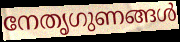
നേതൃഗുണങ്ങൾ